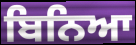
ਬਿਨਿਆ